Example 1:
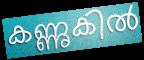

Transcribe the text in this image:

കണ്ണുകിൽ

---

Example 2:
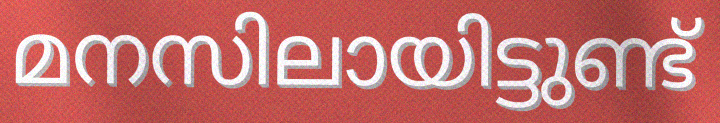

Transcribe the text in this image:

മനസിലായിട്ടുണ്ട്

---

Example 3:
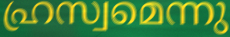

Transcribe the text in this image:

ഹ്രസ്വമെന്നു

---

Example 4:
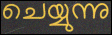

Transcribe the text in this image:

ചെയ്യുന്നു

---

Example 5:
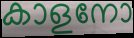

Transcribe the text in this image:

കാളനോ